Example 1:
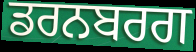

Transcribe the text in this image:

ਡਰਨਬਰਗ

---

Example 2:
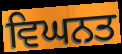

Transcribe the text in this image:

ਵਿਘਨਤ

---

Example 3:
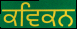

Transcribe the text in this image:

ਕਵਿਕਨ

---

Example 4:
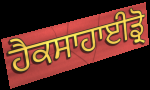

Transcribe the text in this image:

ਹੈਕਸਾਹਾਈਡ੍ਰੋ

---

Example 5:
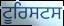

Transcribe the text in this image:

ਟੂਰਿਸਟਸ